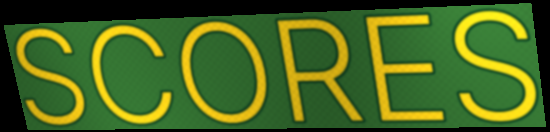
SCORES